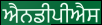
ਐਨਡੀਪੀਐਸ